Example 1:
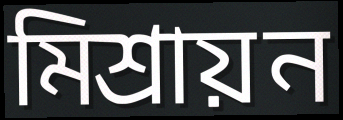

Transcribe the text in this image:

মিশ্রায়ন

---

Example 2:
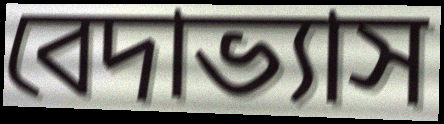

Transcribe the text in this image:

বেদাভ্যাস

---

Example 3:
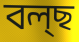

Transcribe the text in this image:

বল্‌ছ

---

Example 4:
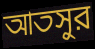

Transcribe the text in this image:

আতসুর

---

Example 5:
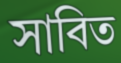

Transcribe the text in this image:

সাবিত